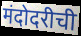
मंदोदरीची